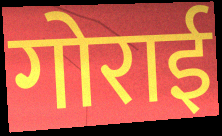
गोराई